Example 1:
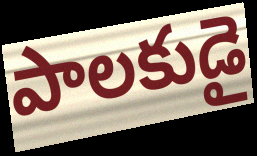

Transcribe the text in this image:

పాలకుడై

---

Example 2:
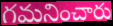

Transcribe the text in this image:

గమనించారు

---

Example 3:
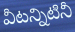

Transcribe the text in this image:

వీటన్నిటినీ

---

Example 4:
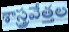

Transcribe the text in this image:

శాస్త్రవేత్తల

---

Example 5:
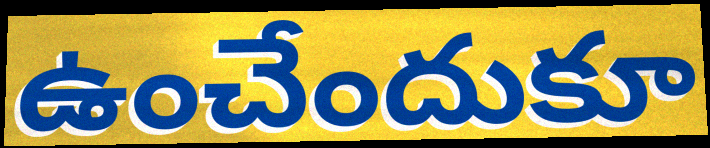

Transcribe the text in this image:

ఉంచేందుకూ